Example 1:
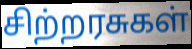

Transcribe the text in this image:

சிற்றரசுகள்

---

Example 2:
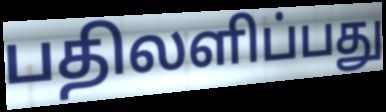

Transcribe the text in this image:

பதிலளிப்பது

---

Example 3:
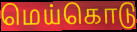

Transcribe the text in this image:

மெய்கொடு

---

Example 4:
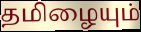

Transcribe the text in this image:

தமிழையும்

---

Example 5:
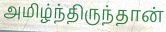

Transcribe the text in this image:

அமிழ்ந்திருந்தான்